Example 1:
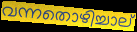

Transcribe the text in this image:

വന്നതൊഴിച്ചാല്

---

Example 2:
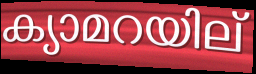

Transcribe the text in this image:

ക്യാമറയില്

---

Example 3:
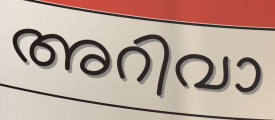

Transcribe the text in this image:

അറിവാ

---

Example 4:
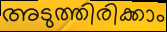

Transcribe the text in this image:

അടുത്തിരിക്കാം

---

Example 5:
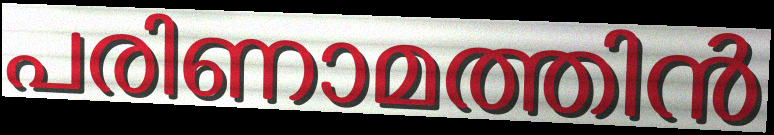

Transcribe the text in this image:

പരിണാമത്തിൻ